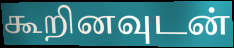
கூறினவுடன்